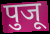
पुजू